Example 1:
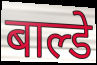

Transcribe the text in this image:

बाल्डे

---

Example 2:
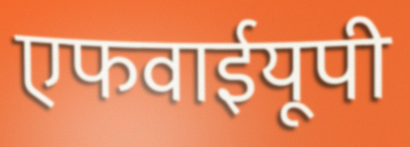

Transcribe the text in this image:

एफवाईयूपी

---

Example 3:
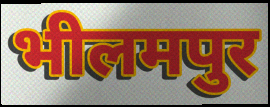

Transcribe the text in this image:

भीलमपुर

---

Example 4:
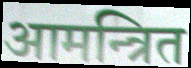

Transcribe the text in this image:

आमन्त्रित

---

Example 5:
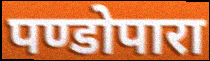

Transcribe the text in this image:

पण्डोपारा